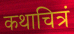
कथाचित्रं